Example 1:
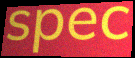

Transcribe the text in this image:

spec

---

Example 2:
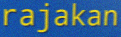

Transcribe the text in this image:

rajakan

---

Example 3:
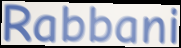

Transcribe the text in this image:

Rabbani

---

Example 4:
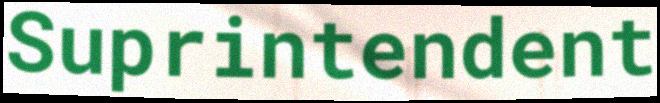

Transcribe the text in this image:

Suprintendent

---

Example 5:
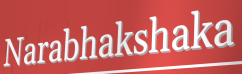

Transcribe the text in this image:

Narabhakshaka